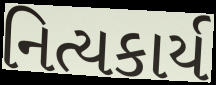
નિત્યકાર્ય